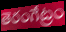
తెరంగేట్రం